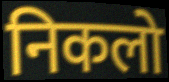
निकलो